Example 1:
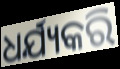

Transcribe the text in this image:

ଧର୍ଯ୍ୟକରି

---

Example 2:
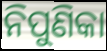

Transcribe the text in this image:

ନିପୁଣିକା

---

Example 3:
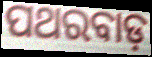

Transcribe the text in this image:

ପଥରବାଡ଼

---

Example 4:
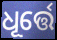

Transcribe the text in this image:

ଧୂର୍ତ୍ତେ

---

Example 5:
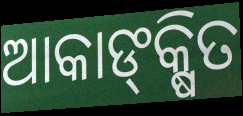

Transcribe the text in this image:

ଆକାଙ୍‍କ୍ଷିତ